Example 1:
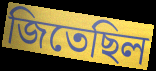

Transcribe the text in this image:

জিতেছিল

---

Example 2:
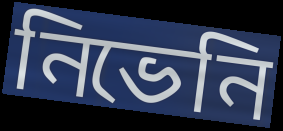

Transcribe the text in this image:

নিভেনি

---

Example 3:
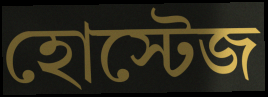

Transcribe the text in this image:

হোস্টেজ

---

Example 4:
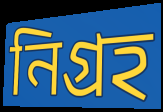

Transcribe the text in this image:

নিগ্রহ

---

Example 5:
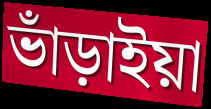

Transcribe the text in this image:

ভাঁড়াইয়া